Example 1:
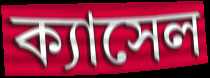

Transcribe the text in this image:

ক্যাসেল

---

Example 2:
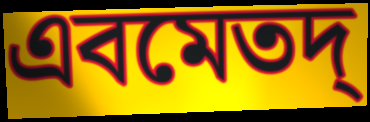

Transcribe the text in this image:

এবমেতদ্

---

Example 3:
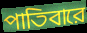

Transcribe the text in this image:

পাতিবারে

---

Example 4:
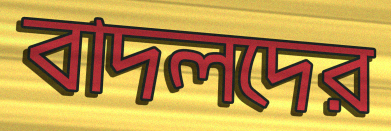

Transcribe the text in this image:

বাদলদের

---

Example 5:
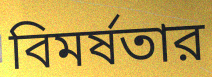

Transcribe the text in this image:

বিমর্ষতার